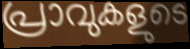
പ്രാവുകളുടെ